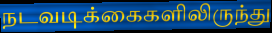
நடவடிக்கைகளிலிருந்து